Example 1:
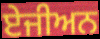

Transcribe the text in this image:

ਏਜੀਅਨ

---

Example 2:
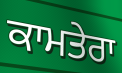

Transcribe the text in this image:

ਕਾਮਤੇਰਾ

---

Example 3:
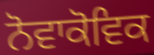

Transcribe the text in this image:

ਨੋਵਾਕੋਵਿਕ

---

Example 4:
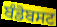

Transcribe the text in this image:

ਬੰਡੋਬਸਟ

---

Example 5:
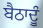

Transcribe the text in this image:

ਬੈਠਾਦੂੰ